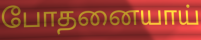
போதனையாய்